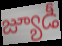
జ్యూడీ